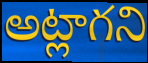
అట్లాగని